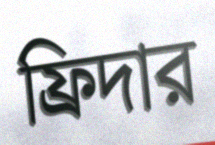
ফ্রিদার